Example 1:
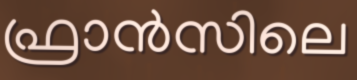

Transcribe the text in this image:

ഫ്രാൻസിലെ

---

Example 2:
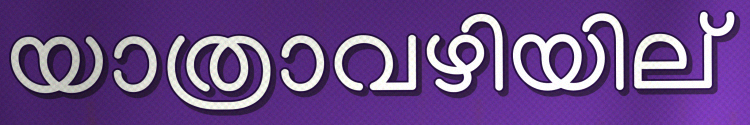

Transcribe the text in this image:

യാത്രാവഴിയില്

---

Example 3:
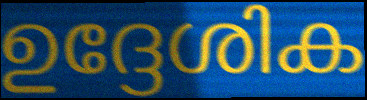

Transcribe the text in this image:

ഉദ്ദേശിക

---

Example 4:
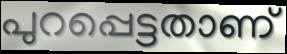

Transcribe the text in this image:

പുറപ്പെട്ടതാണ്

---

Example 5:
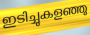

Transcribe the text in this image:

ഇടിച്ചുകളഞ്ഞു